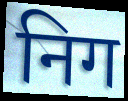
निग